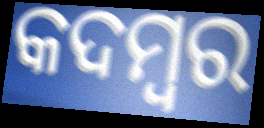
କଦମ୍ବର